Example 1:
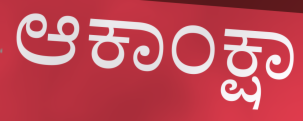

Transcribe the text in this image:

ಆಕಾಂಕ್ಷಾ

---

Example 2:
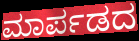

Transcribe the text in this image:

ಮಾರ್ಪಡದ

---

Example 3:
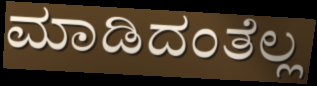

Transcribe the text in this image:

ಮಾಡಿದಂತೆಲ್ಲ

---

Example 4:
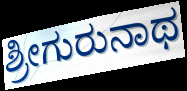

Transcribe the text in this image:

ಶ್ರೀಗುರುನಾಥ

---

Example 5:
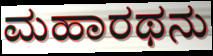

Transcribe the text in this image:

ಮಹಾರಥನು